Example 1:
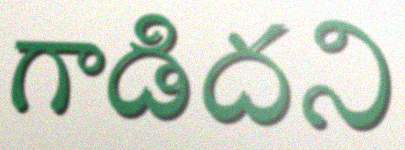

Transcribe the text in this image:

గాడిదని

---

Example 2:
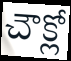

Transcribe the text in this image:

చౌక్లో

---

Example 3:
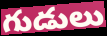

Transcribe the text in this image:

గుడులు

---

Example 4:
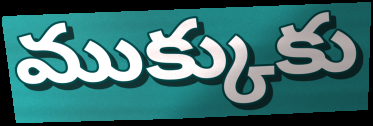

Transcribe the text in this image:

ముక్కుకు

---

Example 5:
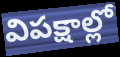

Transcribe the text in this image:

విపక్షాల్లో